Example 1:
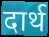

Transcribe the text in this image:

दार्थ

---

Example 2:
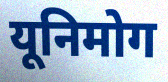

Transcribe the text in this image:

यूनिमोग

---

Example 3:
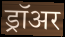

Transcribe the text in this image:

ड्रॉअर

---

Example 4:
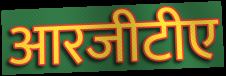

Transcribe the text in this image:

आरजीटीए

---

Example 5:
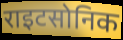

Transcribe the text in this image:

राइटसोनिक